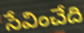
సేవించేది